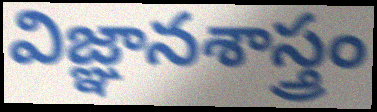
విజ్ఞానశాస్త్రం